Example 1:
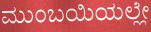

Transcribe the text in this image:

ಮುಂಬಯಿಯಲ್ಲೇ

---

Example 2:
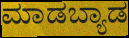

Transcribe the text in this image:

ಮಾಡಬ್ಯಾಡ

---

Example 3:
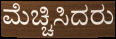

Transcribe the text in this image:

ಮೆಚ್ಚಿಸಿದರು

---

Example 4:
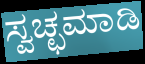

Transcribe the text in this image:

ಸ್ವಚ್ಛಮಾಡಿ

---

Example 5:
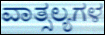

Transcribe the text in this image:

ವಾತ್ಸಲ್ಯಗಳ